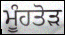
ਮੂੰਹਤੋੜ